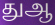
துஆ